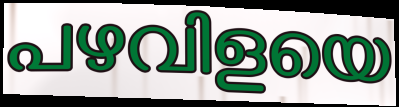
പഴവിളയെ